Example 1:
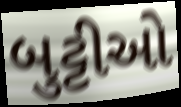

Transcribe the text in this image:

બુટ્ટીઓ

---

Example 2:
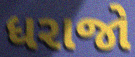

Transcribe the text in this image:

ધરાજો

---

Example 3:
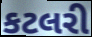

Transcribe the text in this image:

કટલરી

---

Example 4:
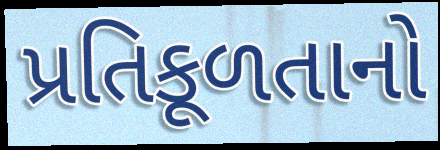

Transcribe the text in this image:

પ્રતિકૂળતાનો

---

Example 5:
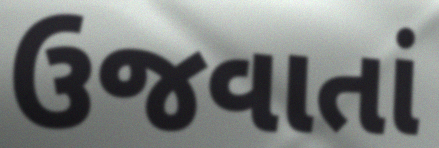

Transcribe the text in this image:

ઉજવાતાં